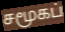
சமூகப்